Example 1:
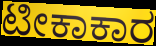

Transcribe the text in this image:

ಟೀಕಾಕಾರ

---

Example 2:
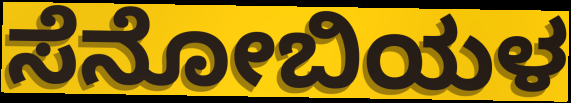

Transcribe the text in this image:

ಸೆನೋಬಿಯಳ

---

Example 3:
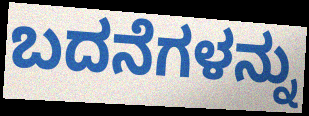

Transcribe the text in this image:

ಬದನೆಗಳನ್ನು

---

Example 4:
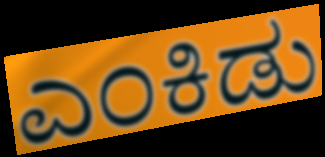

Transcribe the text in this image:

ಎಂಕಿಡು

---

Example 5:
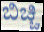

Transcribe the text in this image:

ಬಿಚ್ಚಿ